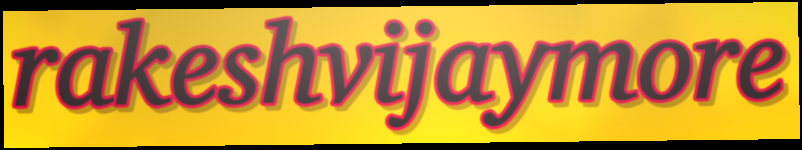
rakeshvijaymore